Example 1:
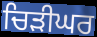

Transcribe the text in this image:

ਚਿੜੀਘਰ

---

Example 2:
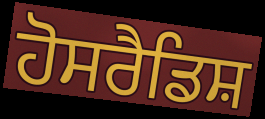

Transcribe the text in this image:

ਹੋਸਰੈਡਿਸ਼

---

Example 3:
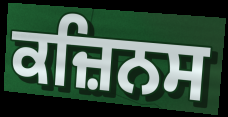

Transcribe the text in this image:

ਕਜ਼ਿਨਸ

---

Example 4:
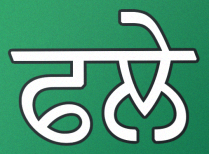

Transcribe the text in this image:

ਫਲੇ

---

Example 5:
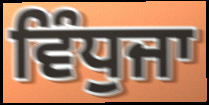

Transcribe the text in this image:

ਵਿੰਧੁਜਾ